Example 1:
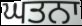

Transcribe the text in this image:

ਘਤਨਾ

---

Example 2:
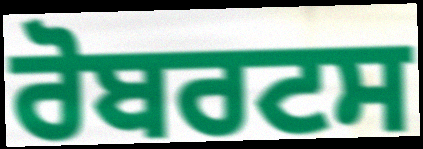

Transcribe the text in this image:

ਰੋਬਰਟਸ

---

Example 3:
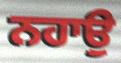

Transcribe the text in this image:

ਨਹਾਉ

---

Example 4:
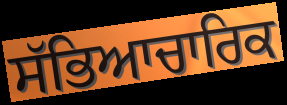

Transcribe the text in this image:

ਸੱਭਿਆਚਾਰਿਕ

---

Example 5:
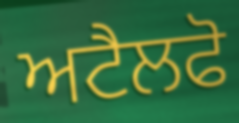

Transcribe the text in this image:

ਅਟੈਲਫੋ